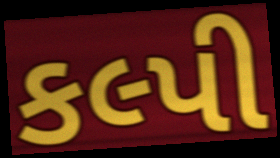
કલ્પી